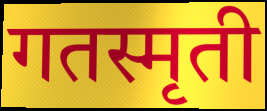
गतस्मृती